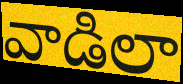
వాడిలా